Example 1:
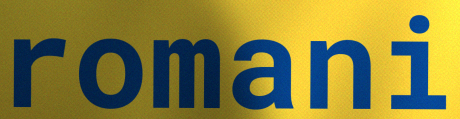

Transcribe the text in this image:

romani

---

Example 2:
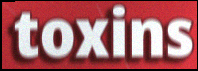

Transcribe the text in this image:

toxins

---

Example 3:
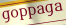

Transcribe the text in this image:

goppaga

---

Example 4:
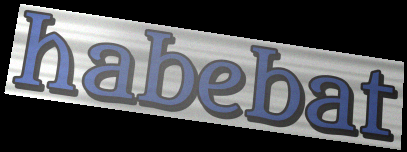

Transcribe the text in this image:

habebat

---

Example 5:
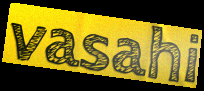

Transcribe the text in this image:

vasahi